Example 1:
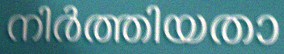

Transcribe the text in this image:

നിർത്തിയതാ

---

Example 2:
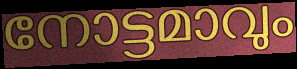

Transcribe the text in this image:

നോട്ടമാവും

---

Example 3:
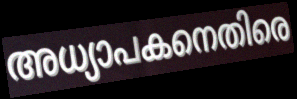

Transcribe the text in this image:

അധ്യാപകനെതിരെ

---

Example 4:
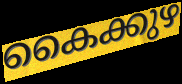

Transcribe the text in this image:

കൈക്കുഴ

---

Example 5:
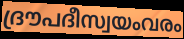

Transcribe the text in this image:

ദ്രൗപദീസ്വയംവരം